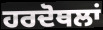
ਹਰਦੋਥਲਾਂ